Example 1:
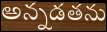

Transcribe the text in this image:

అన్నడతను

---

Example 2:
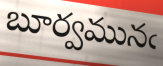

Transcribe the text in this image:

బూర్వమునఁ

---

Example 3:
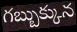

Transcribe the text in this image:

గబ్బుక్కున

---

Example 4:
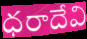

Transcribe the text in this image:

ధరాదేవి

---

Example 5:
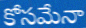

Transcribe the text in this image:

కోసమేనా